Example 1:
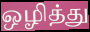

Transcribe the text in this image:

ஒழித்து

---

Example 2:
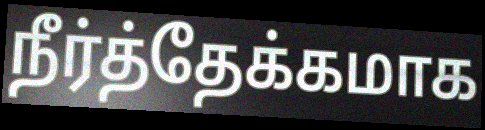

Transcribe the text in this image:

நீர்த்தேக்கமாக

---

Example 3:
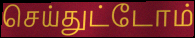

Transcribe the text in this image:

செய்துட்டோம்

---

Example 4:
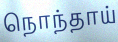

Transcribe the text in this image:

நொந்தாய்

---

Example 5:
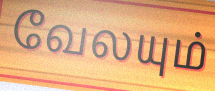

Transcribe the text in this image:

வேலயும்